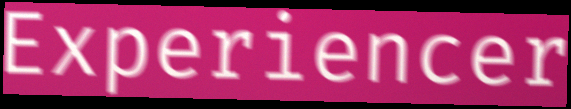
Experiencer